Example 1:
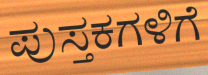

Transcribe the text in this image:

ಪುಸ್ತಕಗಳಿಗೆ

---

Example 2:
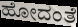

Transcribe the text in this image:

ಹೋದಂತೆ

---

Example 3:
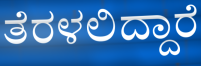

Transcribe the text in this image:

ತೆರಳಲಿದ್ದಾರೆ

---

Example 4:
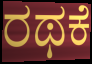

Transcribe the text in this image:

ರಥಕೆ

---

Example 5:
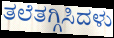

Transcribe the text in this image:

ತಲೆತಗ್ಗಿಸಿದಳು